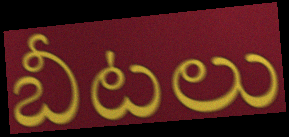
బీటలు